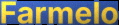
Farmelo